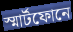
স্মার্টফোনে